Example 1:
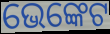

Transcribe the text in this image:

ଭେଙ୍କେଟ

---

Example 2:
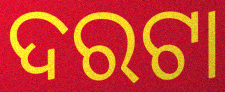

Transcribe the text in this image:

ଦରଟା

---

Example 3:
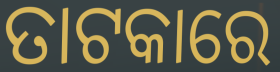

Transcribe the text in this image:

ତାଟକାରେ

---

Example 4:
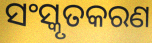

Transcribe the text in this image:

ସଂସ୍କୃତକରଣ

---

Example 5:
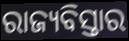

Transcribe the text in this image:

ରାଜ୍ୟବିସ୍ତାର